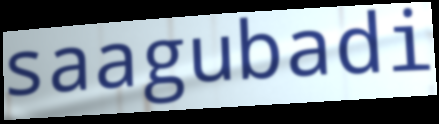
saagubadi